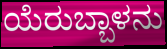
ಯೆರುಬ್ಬಾಳನು